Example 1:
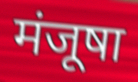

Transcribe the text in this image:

मंजूषा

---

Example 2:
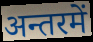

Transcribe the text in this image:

अन्तरमें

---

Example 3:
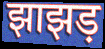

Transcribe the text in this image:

झाझड़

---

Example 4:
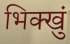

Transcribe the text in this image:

भिक्खुं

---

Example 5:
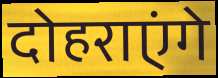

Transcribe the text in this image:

दोहराएंगे